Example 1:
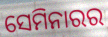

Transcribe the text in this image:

ସେମିନାରର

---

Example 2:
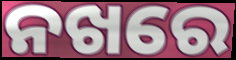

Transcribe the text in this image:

ନଖରେ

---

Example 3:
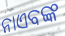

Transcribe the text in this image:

ନାଏବଙ୍କ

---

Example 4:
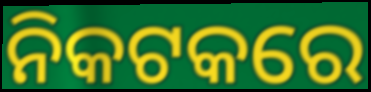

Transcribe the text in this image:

ନିକଟକରେ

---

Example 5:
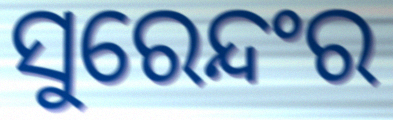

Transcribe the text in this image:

ସୁରେନ୍ଦଂର